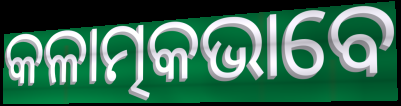
କଳାତ୍ମକଭାବେ